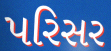
પરિસર